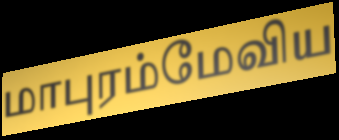
மாபுரம்மேவிய